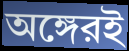
অঙ্গেরই